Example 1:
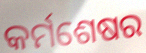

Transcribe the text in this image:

କର୍ମଶେଷର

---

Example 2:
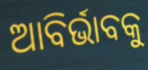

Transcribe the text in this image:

ଆବିର୍ଭାବକୁ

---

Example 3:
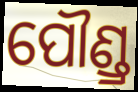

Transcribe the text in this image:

ପୌଣ୍ଡ୍ର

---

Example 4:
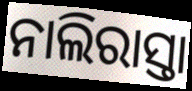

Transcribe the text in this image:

ନାଲିରାସ୍ତା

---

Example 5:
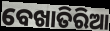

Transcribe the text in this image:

ବେଖାତିରିଆ